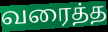
வரைத்த